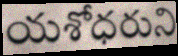
యశోధరుని